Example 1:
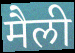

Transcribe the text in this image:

मैली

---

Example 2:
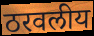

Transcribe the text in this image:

ठरवलीय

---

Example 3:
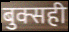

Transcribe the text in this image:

बुक्सही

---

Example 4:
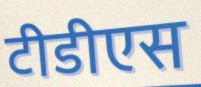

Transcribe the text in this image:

टीडीएस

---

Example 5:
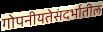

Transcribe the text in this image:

गोपनीयतेसंदर्भातील